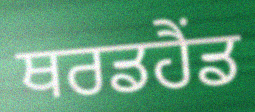
ਥਰਡਹੈਂਡ